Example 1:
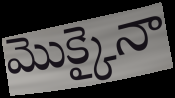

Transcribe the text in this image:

మొక్కైనా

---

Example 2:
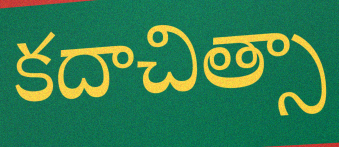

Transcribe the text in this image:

కదాచిత్సా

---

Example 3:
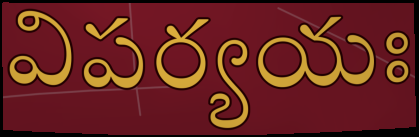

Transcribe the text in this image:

విపర్యయః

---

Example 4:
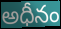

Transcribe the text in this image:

అధీనం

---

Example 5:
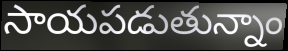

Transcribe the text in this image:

సాయపడుతున్నాం